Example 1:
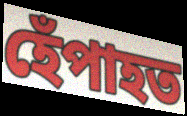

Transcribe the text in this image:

হেঁপাহত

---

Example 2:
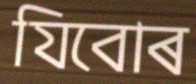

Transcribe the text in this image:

যিবোৰ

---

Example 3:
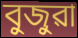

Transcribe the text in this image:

বুজুৱা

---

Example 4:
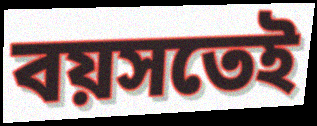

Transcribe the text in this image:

বয়সতেই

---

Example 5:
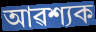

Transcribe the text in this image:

আৱশ্যক